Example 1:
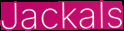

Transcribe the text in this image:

Jackals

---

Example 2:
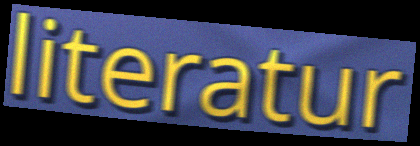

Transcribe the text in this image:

literatur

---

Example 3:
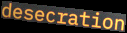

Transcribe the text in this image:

desecration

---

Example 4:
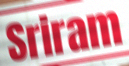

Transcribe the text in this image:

Sriram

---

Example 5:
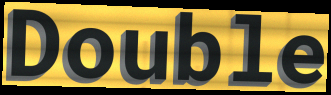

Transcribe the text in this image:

Double